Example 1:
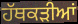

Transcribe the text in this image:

ਹੱਥਕੜੀਆਂ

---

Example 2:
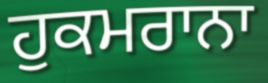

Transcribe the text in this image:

ਹੁਕਮਰਾਨਾ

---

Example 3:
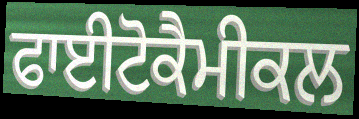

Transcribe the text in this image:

ਫਾਈਟੋਕੈਮੀਕਲ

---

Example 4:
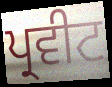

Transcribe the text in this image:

ਪ੍ਰਵੀਟ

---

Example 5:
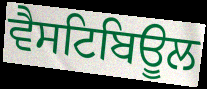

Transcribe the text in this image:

ਵੈਸਟਿਬਿਊਲ